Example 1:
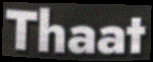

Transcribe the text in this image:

Thaat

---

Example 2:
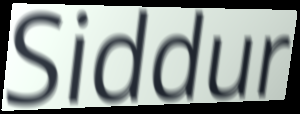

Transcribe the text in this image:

Siddur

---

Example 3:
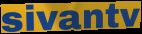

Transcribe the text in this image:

sivantv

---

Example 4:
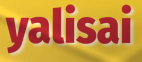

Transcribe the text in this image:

yalisai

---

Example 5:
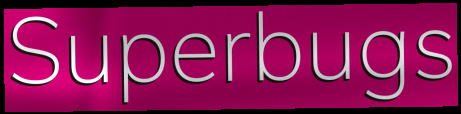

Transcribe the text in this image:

Superbugs